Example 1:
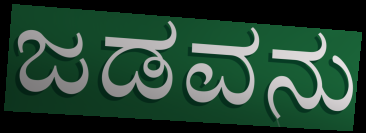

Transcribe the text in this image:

ಜಡವನು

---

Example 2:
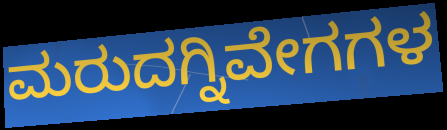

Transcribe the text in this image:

ಮರುದಗ್ನಿವೇಗಗಳ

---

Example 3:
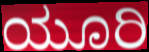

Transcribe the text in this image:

ಯೂರಿ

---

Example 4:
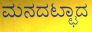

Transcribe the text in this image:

ಮನದಟ್ಟಾದ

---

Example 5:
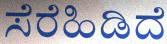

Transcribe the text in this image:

ಸೆರೆಹಿಡಿದೆ